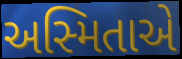
અસ્મિતાએ